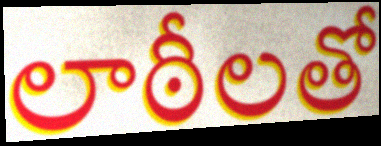
లాఠీలతో